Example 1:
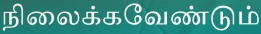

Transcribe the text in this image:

நிலைக்கவேண்டும்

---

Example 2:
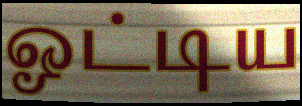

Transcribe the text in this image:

ஓட்டிய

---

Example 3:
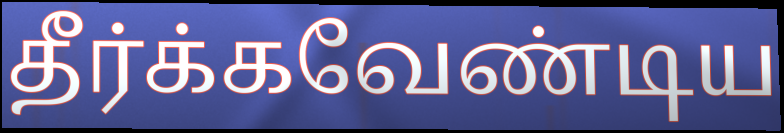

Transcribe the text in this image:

தீர்க்கவேண்டிய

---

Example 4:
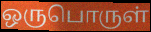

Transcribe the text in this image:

ஒருபொருள்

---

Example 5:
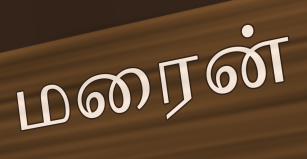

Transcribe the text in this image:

மரைன்